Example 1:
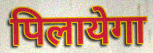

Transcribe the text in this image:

पिलायेगा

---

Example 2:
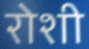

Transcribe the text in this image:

रोशी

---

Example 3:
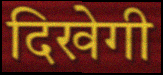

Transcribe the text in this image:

दिखेगी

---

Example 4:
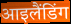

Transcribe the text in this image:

आइलैंडिंग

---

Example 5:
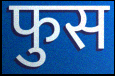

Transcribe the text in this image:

फुस